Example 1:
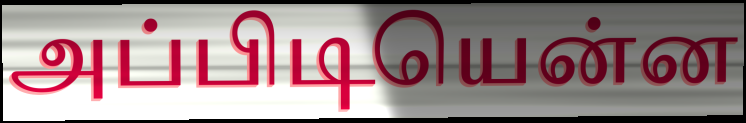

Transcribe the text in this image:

அப்பிடியென்ன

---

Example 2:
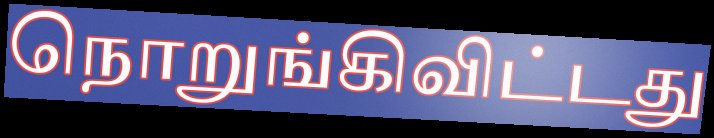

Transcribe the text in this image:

நொறுங்கிவிட்டது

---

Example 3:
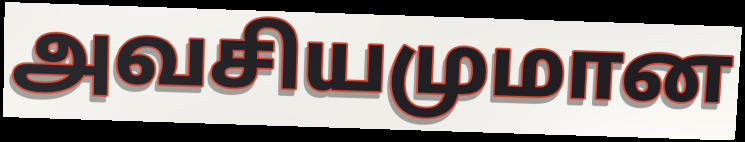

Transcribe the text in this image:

அவசியமுமான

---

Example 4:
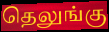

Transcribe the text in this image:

தெலுங்கு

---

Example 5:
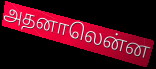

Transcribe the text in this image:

அதனாலென்ன